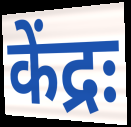
केंद्रः